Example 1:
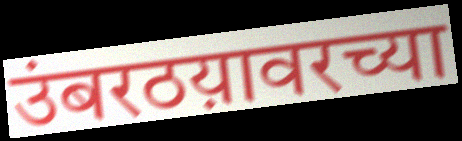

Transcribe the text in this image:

उंबरठय़ावरच्या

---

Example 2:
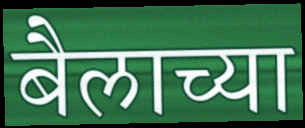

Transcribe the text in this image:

बैलाच्या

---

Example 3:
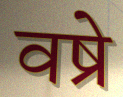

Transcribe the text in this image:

वष्रे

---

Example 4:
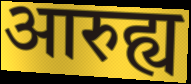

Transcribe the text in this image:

आरुह्य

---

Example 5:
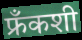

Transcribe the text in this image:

फ्रँकशी